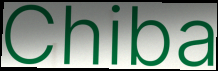
Chiba